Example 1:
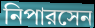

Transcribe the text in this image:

নিপারসেন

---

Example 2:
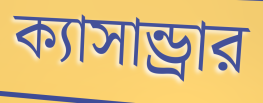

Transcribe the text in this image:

ক্যাসান্ড্রার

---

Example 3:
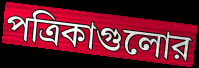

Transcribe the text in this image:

পত্রিকাগুলোর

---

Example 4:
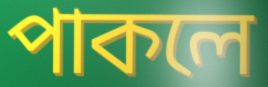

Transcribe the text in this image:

পাকলে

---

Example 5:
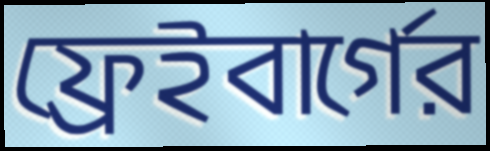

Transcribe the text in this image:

ফ্রেইবার্গের